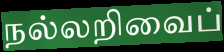
நல்லறிவைப்